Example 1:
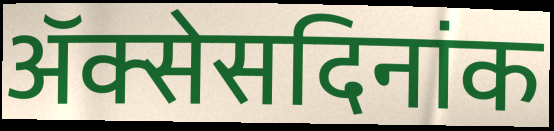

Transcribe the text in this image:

ॲक्सेसदिनांक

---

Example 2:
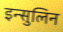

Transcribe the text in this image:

इन्सुलिन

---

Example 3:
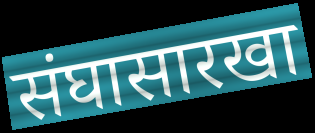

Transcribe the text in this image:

संघासारखा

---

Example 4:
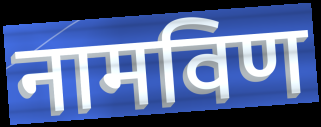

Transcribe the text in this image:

नामविण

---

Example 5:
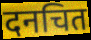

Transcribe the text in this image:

दनचित